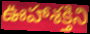
ఊహాశక్తిని